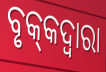
ବୃକ୍‌କଦ୍ଵାରା